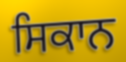
ਸਿਕਾਨ